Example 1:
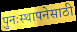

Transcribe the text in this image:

पुनःस्थापनेसाठी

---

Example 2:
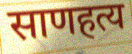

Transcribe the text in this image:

साणहत्य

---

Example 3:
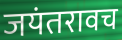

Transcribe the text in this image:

जयंतरावच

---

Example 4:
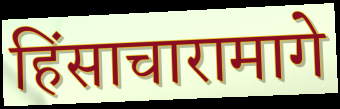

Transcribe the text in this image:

हिंसाचारामागे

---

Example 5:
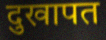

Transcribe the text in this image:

दुखापत